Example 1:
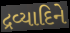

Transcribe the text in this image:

દ્રવ્યાદિને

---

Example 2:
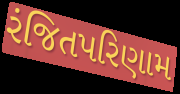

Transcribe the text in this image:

રંજિતપરિણામ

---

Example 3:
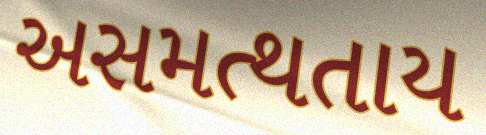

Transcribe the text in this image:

અસમત્થતાય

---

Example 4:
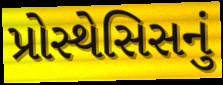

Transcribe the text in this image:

પ્રોસ્થેસિસનું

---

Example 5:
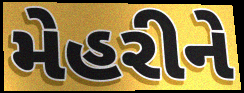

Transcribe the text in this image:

મેહરીને